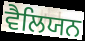
ਵੈਲਿਯਨ